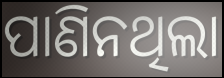
ପାଣିନଥିଲା